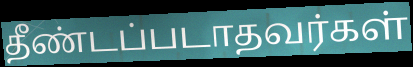
தீண்டப்படாதவர்கள்